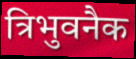
त्रिभुवनैक